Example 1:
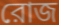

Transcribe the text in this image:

রোজ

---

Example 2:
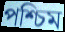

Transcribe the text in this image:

পশ্চিম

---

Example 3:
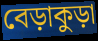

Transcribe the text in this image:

বেড়াকুড়া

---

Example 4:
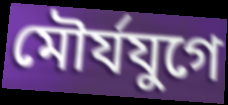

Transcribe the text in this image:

মৌর্যযুগে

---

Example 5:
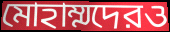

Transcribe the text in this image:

মোহাম্মদেরও